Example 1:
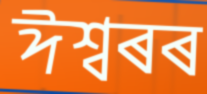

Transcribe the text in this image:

ঈশ্বৰৰ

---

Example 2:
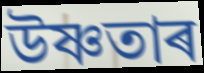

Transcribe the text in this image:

উষ্ণতাৰ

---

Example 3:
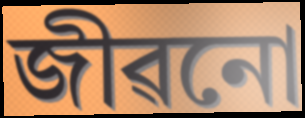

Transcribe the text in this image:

জীৱনো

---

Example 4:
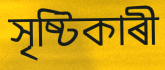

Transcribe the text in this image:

সৃষ্টিকাৰী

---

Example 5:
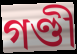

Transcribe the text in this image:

গণ্ডী